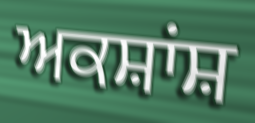
ਅਕਸ਼ਾਂਸ਼